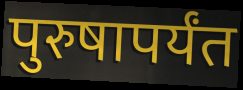
पुरुषापर्यंत